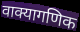
वाक्यागणिक